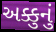
અક્કુનું